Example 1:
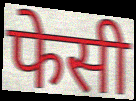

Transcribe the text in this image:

फेसी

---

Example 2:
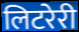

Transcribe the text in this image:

लिटरेरी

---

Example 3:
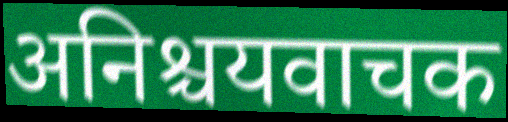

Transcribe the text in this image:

अनिश्चयवाचक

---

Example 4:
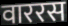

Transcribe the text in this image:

वाररस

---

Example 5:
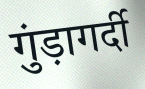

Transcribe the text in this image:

गुंड़ागर्दी